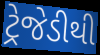
ટ્રેજેડીથી